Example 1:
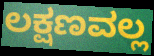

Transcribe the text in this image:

ಲಕ್ಷಣವಲ್ಲ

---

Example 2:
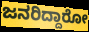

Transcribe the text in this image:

ಜನರಿದ್ದಾರೋ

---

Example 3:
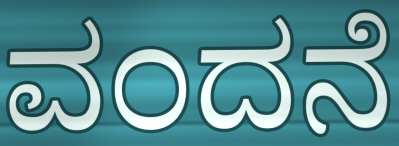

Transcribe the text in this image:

ವಂದನೆ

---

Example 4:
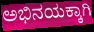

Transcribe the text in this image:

ಅಭಿನಯಕ್ಕಾಗಿ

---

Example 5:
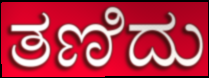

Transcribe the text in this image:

ತಣಿದು